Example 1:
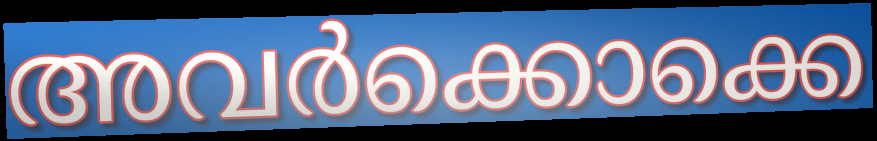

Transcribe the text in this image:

അവർക്കൊക്കെ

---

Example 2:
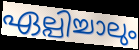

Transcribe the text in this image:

ഏല്പിച്ചാലും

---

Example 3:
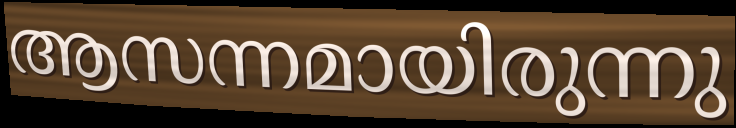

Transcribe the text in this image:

ആസന്നമായിരുന്നു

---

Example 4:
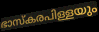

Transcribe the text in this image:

ഭാസ്കരപിള്ളയും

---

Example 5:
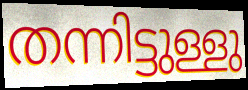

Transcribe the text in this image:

തന്നിട്ടുള്ളു